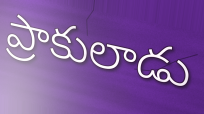
ప్రాకులాడు